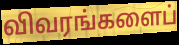
விவரங்களைப்